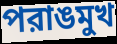
পরাঙমুখ